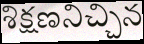
శిక్షణనిచ్చిన